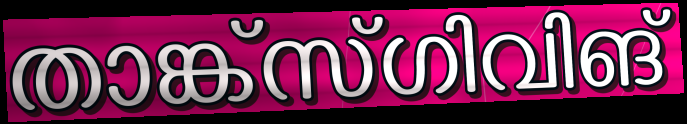
താങ്ക്സ്ഗിവിങ്